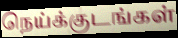
நெய்க்குடங்கள்